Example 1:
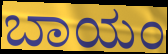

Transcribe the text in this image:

ಬಾಯಂ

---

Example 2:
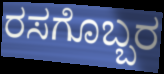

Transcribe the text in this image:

ರಸಗೊಬ್ಬರ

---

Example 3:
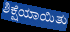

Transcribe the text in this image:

ಶಿಕ್ಷೆಯಾಯಿತು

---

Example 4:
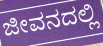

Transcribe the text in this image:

ಜೀವನದಲ್ಲಿ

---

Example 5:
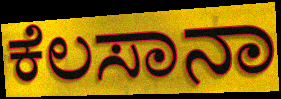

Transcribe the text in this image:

ಕೆಲಸಾನಾ